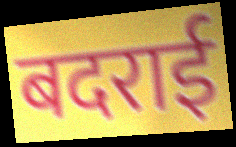
बदराई